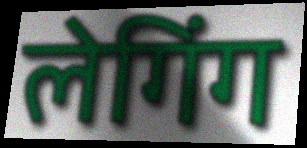
लेगिंग